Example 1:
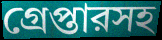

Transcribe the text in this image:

গ্রেপ্তারসহ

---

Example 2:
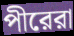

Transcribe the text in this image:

পীরেরা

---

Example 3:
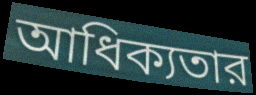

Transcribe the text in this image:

আধিক্যতার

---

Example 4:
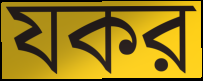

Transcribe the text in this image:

যকর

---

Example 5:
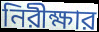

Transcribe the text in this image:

নিরীক্ষার